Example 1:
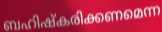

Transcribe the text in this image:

ബഹിഷ്കരിക്കണമെന്ന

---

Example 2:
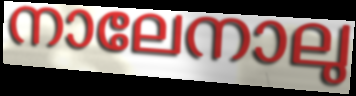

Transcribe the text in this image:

നാലേനാലു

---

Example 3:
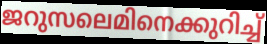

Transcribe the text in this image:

ജറുസലെമിനെക്കുറിച്ച്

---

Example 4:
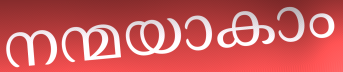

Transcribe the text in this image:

നന്മയാകാം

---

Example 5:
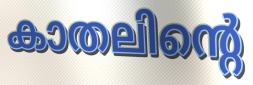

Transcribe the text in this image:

കാതലിന്റെ